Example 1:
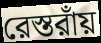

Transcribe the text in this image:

রেস্তরাঁয়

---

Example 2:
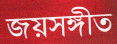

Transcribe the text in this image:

জয়সঙ্গীত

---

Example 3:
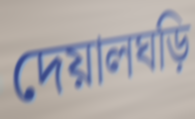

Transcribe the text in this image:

দেয়ালঘড়ি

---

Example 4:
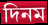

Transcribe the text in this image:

দিনম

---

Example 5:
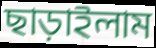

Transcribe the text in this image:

ছাড়াইলাম